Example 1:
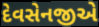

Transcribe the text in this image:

દેવસેનજીએ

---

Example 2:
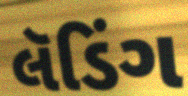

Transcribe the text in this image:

લૅડિંગ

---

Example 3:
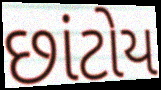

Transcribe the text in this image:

છાંટોય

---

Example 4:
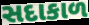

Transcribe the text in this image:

સદાકાળ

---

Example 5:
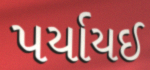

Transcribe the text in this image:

પર્યાયઈ